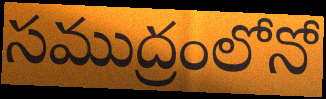
సముద్రంలోనో